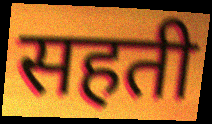
सहती